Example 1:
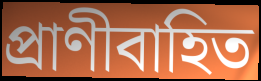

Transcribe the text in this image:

প্রাণীবাহিত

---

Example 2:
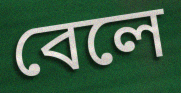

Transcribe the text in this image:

বেলে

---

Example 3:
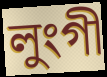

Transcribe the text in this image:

লুংগী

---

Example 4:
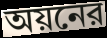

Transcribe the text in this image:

অয়নের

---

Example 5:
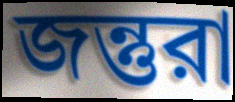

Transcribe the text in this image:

জন্তুরা